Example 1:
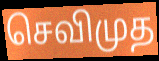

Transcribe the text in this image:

செவிமுத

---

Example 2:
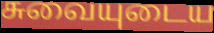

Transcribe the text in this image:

சுவையுடைய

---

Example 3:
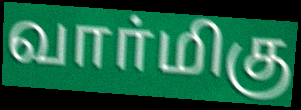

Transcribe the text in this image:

வார்மிகு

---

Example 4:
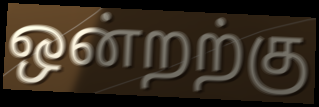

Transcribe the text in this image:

ஒன்றற்கு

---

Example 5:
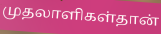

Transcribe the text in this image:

முதலாளிகள்தான்